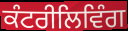
ਕੰਟਰੀਲਿਵਿੰਗ